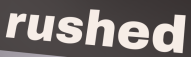
rushed